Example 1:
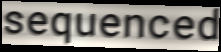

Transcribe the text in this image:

sequenced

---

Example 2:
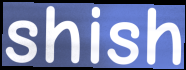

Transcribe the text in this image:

shish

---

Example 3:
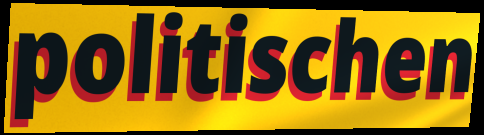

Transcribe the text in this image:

politischen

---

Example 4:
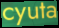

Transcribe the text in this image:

cyuta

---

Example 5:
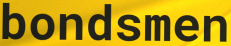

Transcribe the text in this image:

bondsmen